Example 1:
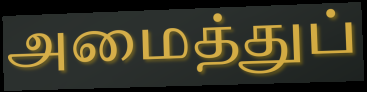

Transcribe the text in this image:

அமைத்துப்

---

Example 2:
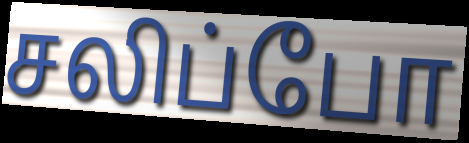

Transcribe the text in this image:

சலிப்போ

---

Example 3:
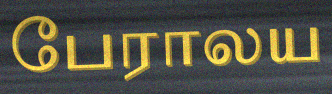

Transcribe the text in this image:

பேராலய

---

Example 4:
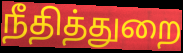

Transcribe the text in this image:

நீதித்துறை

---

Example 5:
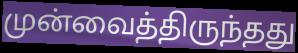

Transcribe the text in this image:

முன்வைத்திருந்தது